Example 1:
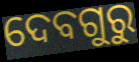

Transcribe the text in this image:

ଦେବଗୁରୁ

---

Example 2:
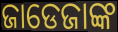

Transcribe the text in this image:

ଜାଡେଜାଙ୍କ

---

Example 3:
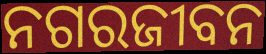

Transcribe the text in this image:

ନଗରଜୀବନ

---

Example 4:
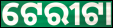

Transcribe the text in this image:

ଟେରୀଟା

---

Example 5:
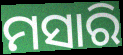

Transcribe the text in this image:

ମସାରି